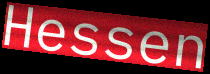
Hessen